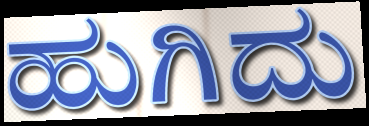
ಹುಗಿದು